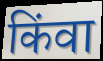
किंवा